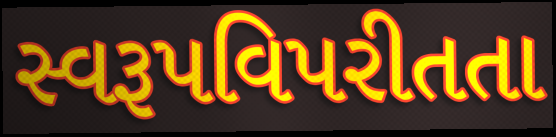
સ્વરૂપવિપરીતતા